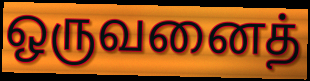
ஒருவனைத்